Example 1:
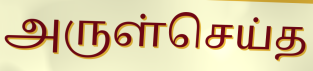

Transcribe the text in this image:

அருள்செய்த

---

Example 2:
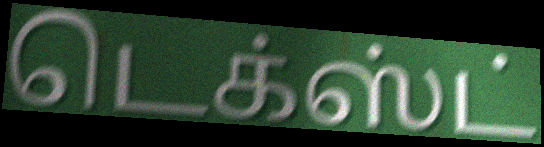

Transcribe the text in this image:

டெக்ஸ்ட்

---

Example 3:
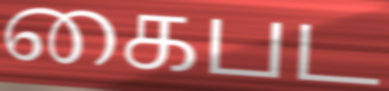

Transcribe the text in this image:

கைபட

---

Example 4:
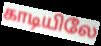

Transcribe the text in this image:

காடியிலே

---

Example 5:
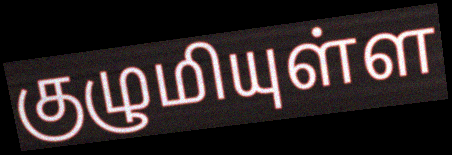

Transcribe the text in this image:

குழுமியுள்ள